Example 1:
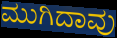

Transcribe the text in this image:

ಮುಗಿದಾವು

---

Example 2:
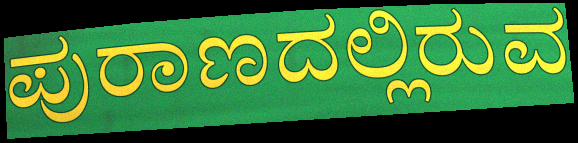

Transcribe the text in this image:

ಪುರಾಣದಲ್ಲಿರುವ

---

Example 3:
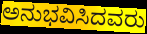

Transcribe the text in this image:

ಅನುಭವಿಸಿದವರು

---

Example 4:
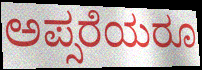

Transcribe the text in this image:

ಅಪ್ಸರೆಯರೂ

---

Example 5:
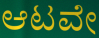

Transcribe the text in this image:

ಆಟವೇ